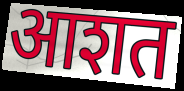
आशत